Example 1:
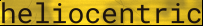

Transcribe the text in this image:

heliocentric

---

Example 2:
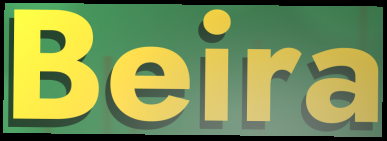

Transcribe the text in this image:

Beira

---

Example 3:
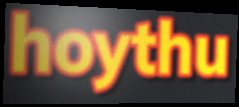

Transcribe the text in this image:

hoythu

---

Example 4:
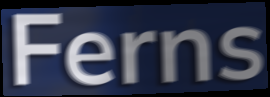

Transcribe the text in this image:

Ferns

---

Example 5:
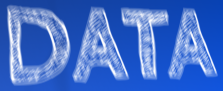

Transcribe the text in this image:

DATA